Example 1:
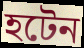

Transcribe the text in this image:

হটেন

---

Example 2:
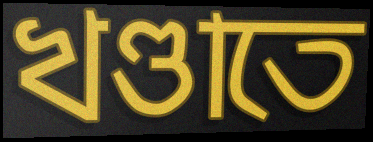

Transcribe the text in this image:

খণ্ডাতে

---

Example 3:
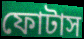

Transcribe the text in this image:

ফোটাস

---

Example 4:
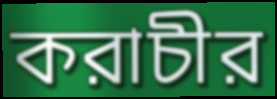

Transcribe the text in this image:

করাচীর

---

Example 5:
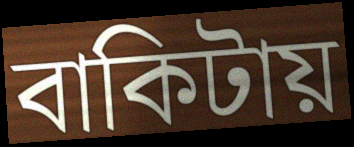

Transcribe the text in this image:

বাকিটায়